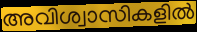
അവിശ്വാസികളിൽ